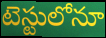
టెస్టులోనూ